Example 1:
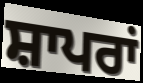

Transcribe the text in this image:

ਸ਼ਾਪਰਾਂ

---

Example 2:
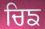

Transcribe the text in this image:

ਚਿਙ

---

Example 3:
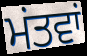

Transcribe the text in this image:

ਮਂਤਵਾਂ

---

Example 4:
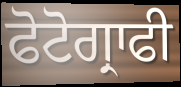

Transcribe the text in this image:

ਫੋਟੋਗ੍ਰਾਫੀ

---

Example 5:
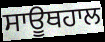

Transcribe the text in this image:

ਸਾਊਥਹਾਲ